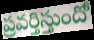
ప్రవర్తిస్తుందో